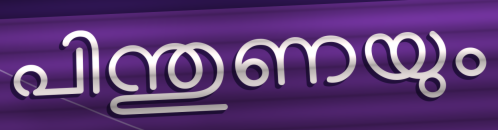
പിന്തുണയും